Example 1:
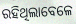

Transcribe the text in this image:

ରହିଥିଲାବେଳେ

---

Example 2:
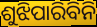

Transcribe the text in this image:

ଶୁଝିପାରିବିନି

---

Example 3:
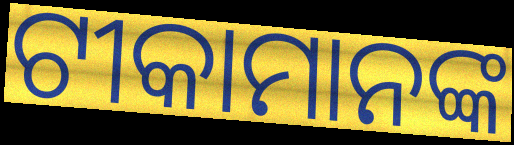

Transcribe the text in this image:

ଟୀକାମାନଙ୍କ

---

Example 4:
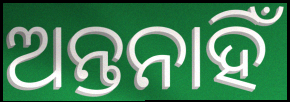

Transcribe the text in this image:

ଅନ୍ତନାହିଁ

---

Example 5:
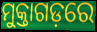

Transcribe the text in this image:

ମୁକ୍ତାଗଡ଼ରେ